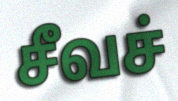
சீவச்